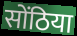
सोंठिया